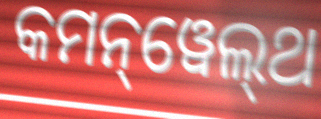
କମନ୍‌ୱେଲ୍‌ଥ